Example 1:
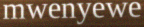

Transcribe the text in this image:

mwenyewe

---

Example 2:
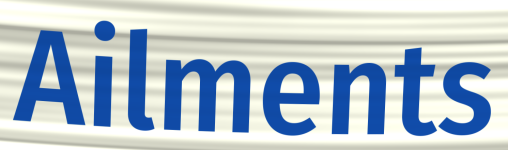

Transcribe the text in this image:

Ailments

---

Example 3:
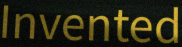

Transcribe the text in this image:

Invented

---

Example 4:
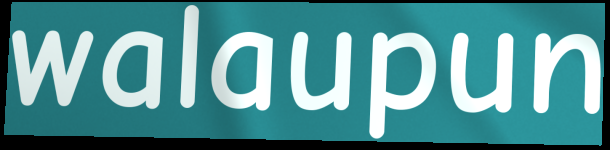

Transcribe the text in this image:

walaupun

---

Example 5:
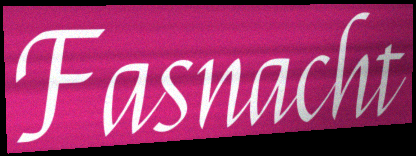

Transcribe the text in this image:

Fasnacht